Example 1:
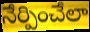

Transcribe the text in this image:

నేర్పించేలా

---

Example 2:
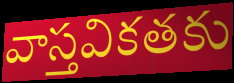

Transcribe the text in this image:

వాస్తవికతకు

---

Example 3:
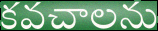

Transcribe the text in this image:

కవచాలను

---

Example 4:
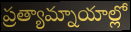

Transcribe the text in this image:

ప్రత్యామ్నాయాల్లో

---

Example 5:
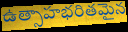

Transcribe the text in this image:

ఉత్సాహభరితమైన